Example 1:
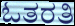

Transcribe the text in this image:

ಓತರತಿ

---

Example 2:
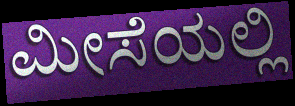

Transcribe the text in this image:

ಮೀಸೆಯಲ್ಲಿ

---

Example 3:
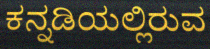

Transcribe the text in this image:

ಕನ್ನಡಿಯಲ್ಲಿರುವ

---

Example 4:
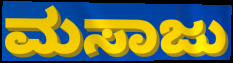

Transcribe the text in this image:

ಮಸಾಜು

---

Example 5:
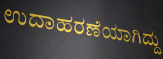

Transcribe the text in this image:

ಉದಾಹರಣೆಯಾಗಿದ್ದು